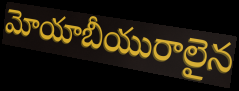
మోయాబీయురాలైన